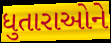
ધુતારાઓને